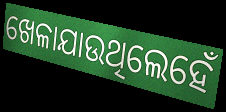
ଖେଳାଯାଉଥିଲେହେଁ